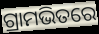
ଗ୍ରାମଭିତରେ